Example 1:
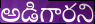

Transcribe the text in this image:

అడిగారని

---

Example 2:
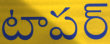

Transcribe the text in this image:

టాపర్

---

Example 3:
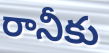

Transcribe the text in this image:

రానీకు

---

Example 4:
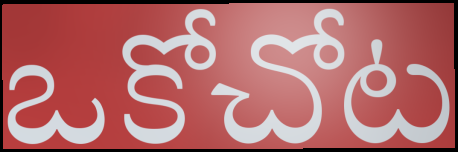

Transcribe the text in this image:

ఒకోచోట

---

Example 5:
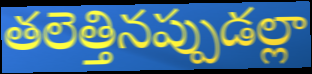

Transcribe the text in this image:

తలెత్తినప్పుడల్లా